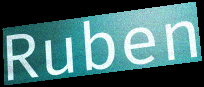
Ruben